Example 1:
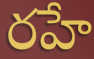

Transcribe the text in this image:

రహే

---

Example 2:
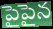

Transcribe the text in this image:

పైపైన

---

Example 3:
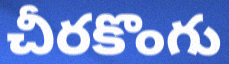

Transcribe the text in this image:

చీరకొంగు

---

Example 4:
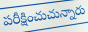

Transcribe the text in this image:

పరీక్షించుచున్నారు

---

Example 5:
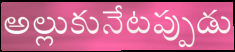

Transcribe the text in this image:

అల్లుకునేటప్పుడు